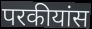
परकीयांस